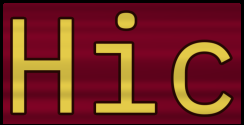
Hic